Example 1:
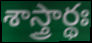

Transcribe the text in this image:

శాస్త్రార్థః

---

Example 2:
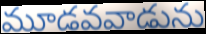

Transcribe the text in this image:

మూడవవాడును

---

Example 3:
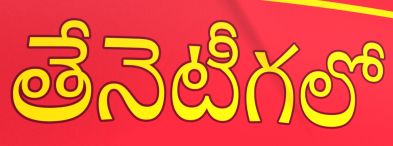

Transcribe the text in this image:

తేనెటీగలో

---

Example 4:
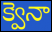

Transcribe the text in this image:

క్వెనా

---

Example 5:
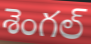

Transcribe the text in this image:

శెంగల్